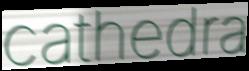
cathedra